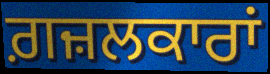
ਗ਼ਜ਼ਲਕਾਰਾਂ